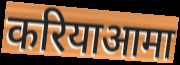
करियाआमा